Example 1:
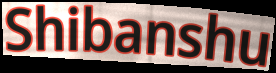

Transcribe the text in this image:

Shibanshu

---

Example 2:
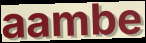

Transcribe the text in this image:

aambe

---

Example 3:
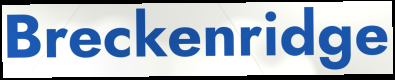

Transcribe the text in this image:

Breckenridge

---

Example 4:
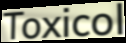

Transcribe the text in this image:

Toxicol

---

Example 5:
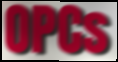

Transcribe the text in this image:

OPCs